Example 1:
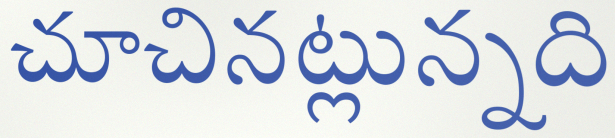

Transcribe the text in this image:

చూచినట్లున్నది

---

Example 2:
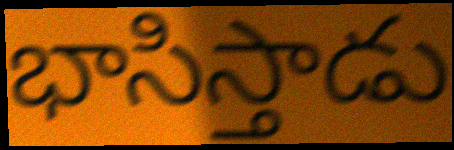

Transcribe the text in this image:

భాసిస్తాడు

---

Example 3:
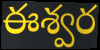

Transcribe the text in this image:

ఈశ్వర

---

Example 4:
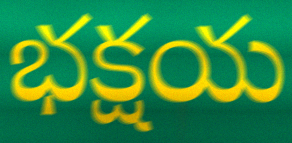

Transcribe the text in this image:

భక్షయ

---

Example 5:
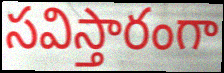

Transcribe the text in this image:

సవిస్తారంగా